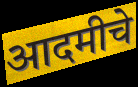
आदमीचे